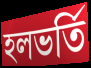
হলভর্তি